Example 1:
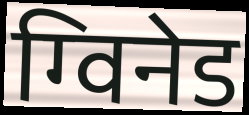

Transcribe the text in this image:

ग्विनेड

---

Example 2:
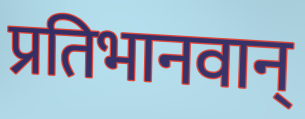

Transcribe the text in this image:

प्रतिभानवान्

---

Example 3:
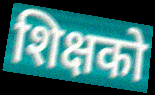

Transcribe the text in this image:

शिक्षको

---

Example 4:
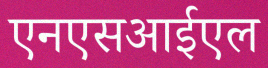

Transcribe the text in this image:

एनएसआईएल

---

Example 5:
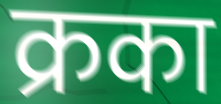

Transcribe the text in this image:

क्रका